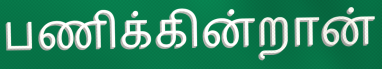
பணிக்கின்றான்